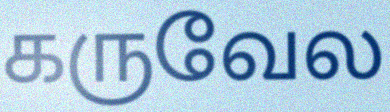
கருவேல